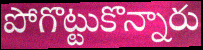
పోగొట్టుకొన్నారు